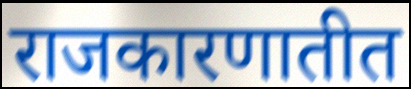
राजकारणातीत